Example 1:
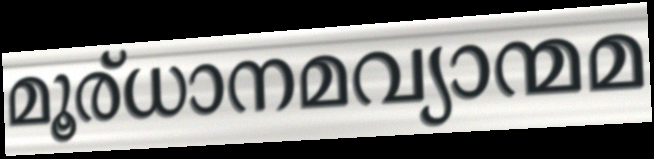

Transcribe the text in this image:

മൂര്ധാനമവ്യാന്മമ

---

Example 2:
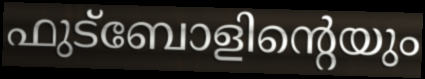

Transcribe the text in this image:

ഫുട്ബോളിന്റെയും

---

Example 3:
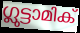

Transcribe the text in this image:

ഗ്ലുട്ടാമിക്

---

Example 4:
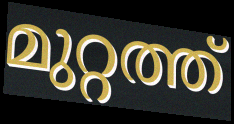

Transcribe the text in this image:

മുറ്റത്ത്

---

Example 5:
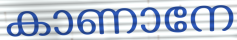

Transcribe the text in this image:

കാണാനേ